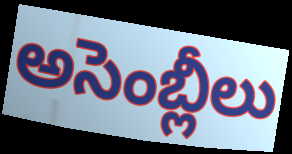
అసెంబ్లీలు